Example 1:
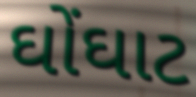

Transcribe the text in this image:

ઘોંઘાટ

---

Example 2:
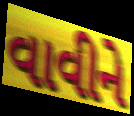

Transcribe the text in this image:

વાવીને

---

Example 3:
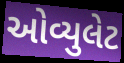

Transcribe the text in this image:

ઓવ્યુલેટ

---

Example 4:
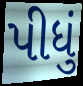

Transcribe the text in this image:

પીધું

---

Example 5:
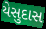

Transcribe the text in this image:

યેસુદાસ